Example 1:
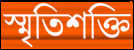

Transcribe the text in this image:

স্মৃতিশক্তি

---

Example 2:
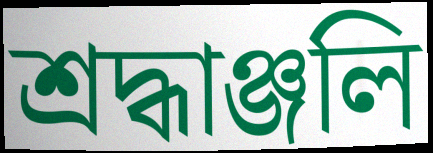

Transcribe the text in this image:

শ্ৰদ্ধাঞ্জলি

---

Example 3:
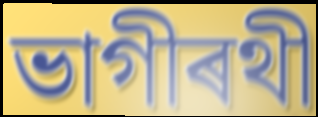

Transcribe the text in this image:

ভাগীৰথী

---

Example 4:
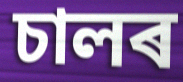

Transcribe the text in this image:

চালৰ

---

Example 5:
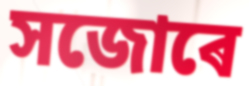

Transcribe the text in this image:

সজোৰে